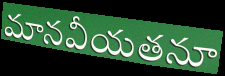
మానవీయతనూ